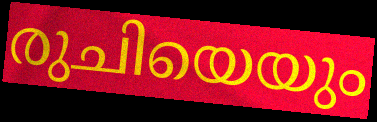
രുചിയെയും